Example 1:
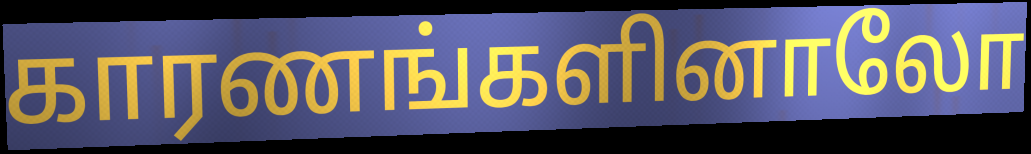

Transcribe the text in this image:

காரணங்களினாலோ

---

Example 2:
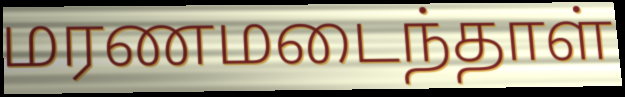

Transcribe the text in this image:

மரணமடைந்தாள்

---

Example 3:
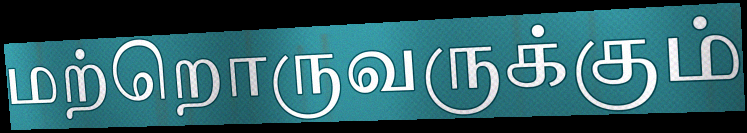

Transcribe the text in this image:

மற்றொருவருக்கும்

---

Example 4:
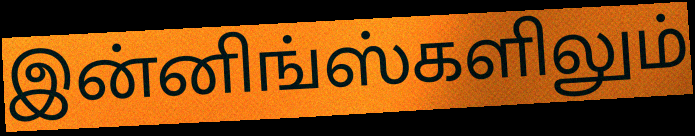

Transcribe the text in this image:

இன்னிங்ஸ்களிலும்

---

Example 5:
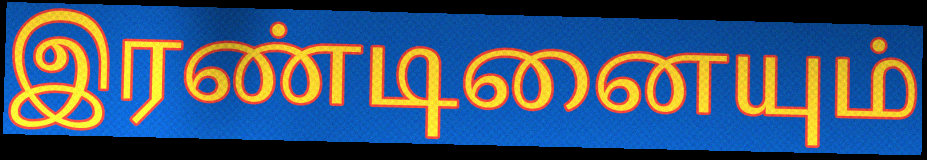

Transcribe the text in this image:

இரண்டினையும்